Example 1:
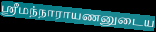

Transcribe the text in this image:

ஸ்ரீமந்நாராயணனுடைய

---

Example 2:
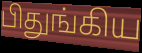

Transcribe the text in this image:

பிதுங்கிய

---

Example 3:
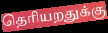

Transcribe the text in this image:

தெரியறதுக்கு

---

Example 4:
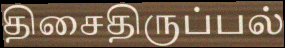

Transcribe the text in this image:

திசைதிருப்பல்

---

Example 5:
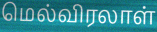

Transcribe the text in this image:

மெல்விரலாள்